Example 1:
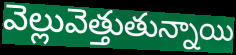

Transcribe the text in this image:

వెల్లువెత్తుతున్నాయి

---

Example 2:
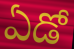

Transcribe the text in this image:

ఏడో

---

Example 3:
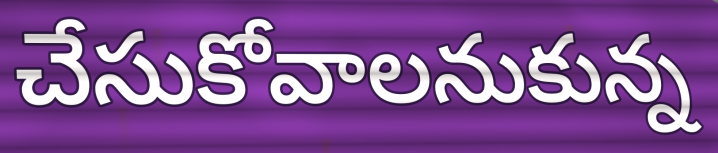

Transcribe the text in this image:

చేసుకోవాలనుకున్న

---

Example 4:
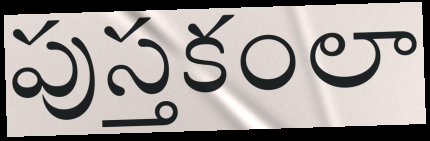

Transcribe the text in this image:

పుస్తకంలా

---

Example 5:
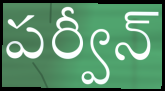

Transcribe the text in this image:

పర్వీన్